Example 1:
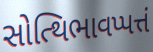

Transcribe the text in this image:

સોત્થિભાવપ્પત્તં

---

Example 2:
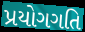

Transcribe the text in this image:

પ્રયોગગતિ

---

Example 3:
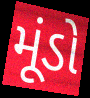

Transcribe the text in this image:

મૂંડો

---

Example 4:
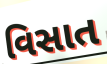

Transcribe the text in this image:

વિસાત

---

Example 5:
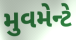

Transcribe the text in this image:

મુવમેન્ટે